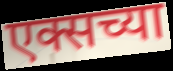
एक्सच्या